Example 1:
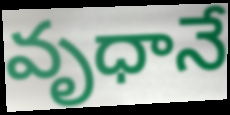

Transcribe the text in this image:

వృధానే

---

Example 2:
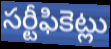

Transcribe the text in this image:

సర్టీఫికెట్లు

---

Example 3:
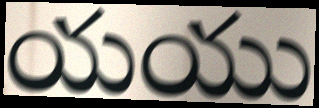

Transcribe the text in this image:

యయు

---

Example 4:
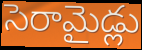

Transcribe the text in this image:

సెరామైడ్లు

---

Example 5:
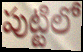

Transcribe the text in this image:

పుట్టిలో